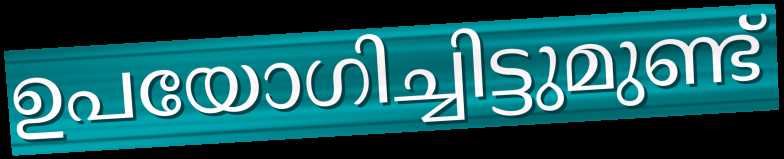
ഉപയോഗിച്ചിട്ടുമുണ്ട്